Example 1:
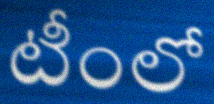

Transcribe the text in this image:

టీంలో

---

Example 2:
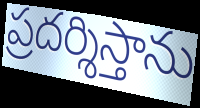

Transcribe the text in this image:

ప్రదర్శిస్తాను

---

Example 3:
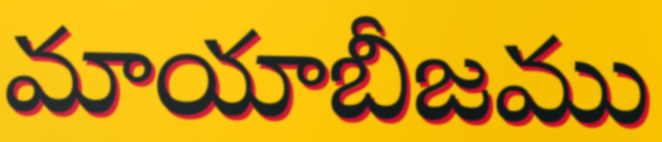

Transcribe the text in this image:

మాయాబీజము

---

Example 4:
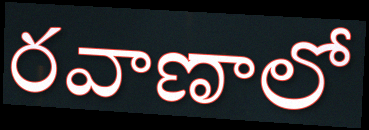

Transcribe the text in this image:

రవాణాలో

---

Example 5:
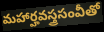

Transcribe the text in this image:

మహార్హవస్త్రసంవీతో